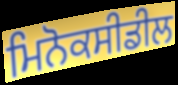
ਮਿਨੋਕਸੀਡੀਲ